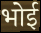
भोई